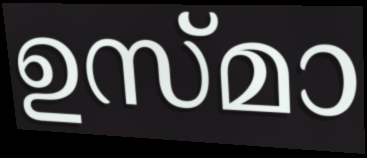
ഉസ്മാ